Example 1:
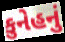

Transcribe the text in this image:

કુનેહનું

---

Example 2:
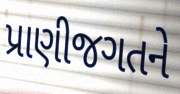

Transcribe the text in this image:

પ્રાણીજગતને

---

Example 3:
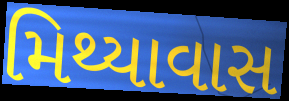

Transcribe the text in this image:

મિથ્યાવાસ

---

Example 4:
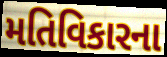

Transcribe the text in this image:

મતિવિકારના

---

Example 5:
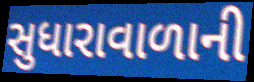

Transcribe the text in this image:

સુધારાવાળાની